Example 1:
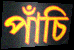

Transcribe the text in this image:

পাঁচি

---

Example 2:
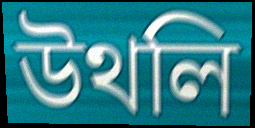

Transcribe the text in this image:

উথলি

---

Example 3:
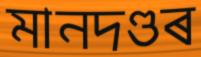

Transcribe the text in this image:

মানদণ্ডৰ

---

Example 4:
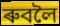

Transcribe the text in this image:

ৰুবলৈ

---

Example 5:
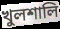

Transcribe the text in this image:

খুলশালি